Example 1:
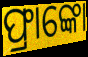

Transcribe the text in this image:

ଫ୍ରାଙ୍କୋ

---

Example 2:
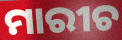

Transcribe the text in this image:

ମାରୀଚ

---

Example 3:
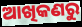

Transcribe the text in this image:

ଆଖିକଣରୁ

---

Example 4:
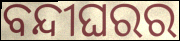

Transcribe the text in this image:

ବନ୍ଦୀଘରର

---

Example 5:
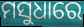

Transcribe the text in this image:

ମସୁଧାରେ